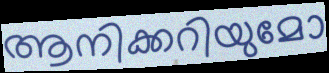
ആനിക്കറിയുമോ